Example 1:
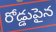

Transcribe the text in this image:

రోడ్డుపైన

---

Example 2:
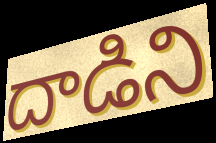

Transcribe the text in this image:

దాడిని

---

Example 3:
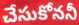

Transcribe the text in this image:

చేసుకోననీ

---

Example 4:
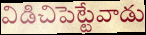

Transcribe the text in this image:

విడిచిపెట్టేవాడు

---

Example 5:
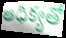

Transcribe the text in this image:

ఆధిక్యతో